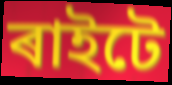
ৰাইটে